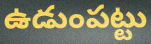
ఉడుంపట్టు